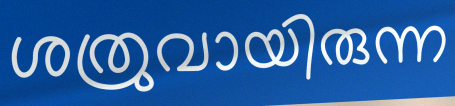
ശത്രുവായിരുന്ന